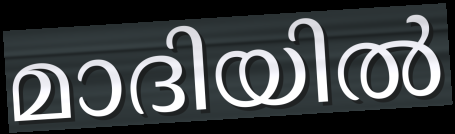
മാദിയിൽ